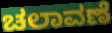
ಚಲಾವಣೆ